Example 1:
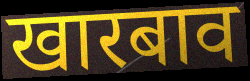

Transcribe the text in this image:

खारबाव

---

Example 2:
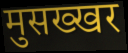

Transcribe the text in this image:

मुसख्खर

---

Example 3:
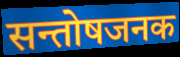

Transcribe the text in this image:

सन्तोषजनक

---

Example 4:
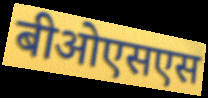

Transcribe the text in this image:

बीओएसएस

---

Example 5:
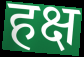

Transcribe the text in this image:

हक्ष